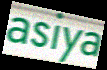
asiya